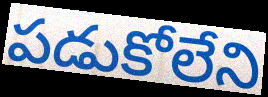
పడుకోలేని